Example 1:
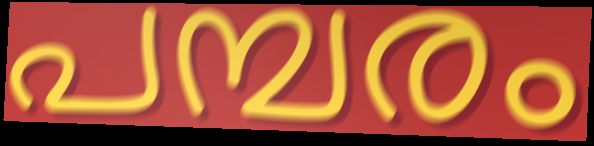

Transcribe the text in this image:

പമ്പരം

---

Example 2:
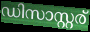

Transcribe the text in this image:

ഡിസാസ്റ്റര്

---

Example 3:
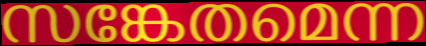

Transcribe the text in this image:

സങ്കേതമെന്ന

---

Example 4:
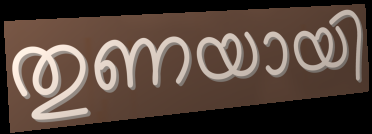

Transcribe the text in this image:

തുണയായി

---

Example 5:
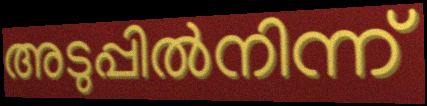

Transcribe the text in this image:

അടുപ്പിൽനിന്ന്